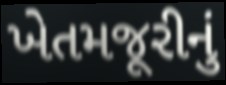
ખેતમજૂરીનું